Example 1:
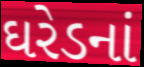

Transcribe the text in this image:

ઘરેડનાં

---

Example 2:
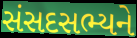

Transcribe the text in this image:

સંસદસભ્યને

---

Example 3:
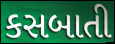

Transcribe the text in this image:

કસબાતી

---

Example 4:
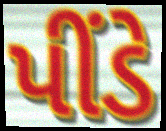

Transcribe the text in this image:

પીંડે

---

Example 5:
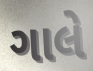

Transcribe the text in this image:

ગાલે